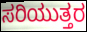
ಸರಿಯುತ್ತರ